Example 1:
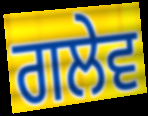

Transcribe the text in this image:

ਗਲੇਵ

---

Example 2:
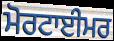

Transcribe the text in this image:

ਮੋਰਟਾਈਮਰ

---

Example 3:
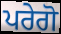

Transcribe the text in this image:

ਪਰੇਗੋ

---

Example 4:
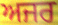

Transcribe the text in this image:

ਅਜਰ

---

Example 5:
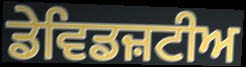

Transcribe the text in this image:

ਡੇਵਿਡਜ਼ਟੀਅ